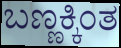
ಬಣ್ಣಕ್ಕಿಂತ